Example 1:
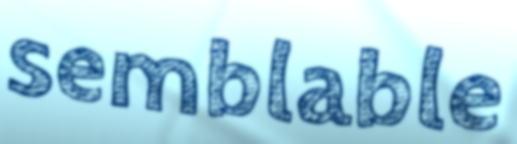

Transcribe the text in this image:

semblable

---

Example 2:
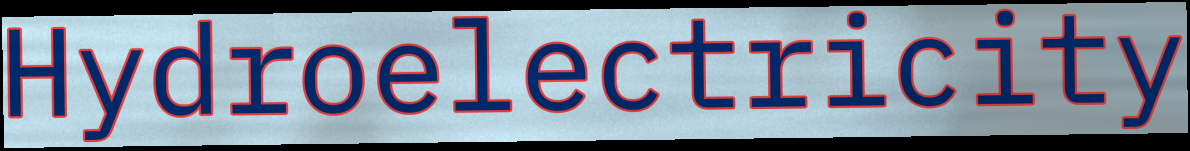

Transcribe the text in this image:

Hydroelectricity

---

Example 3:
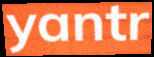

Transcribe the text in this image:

yantr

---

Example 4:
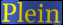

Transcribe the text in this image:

Plein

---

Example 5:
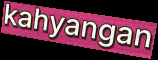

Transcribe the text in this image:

kahyangan